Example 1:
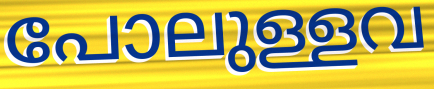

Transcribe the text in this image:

പോലുള്ളവ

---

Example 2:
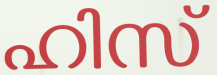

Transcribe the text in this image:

ഹിസ്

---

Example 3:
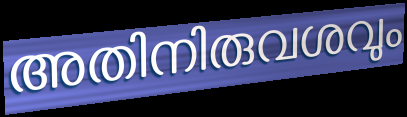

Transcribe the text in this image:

അതിനിരുവശവും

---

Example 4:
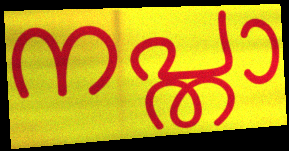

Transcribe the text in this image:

നപ്താ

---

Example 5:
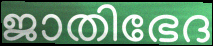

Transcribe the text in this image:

ജാതിഭേദ